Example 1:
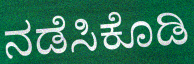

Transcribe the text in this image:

ನಡೆಸಿಕೊಡಿ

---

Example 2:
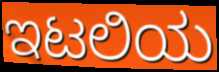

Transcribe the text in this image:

ಇಟಲಿಯ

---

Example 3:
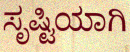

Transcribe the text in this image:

ಸೃಷ್ಟಿಯಾಗಿ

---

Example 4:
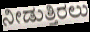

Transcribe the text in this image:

ನೀಡುತ್ತಿರಲು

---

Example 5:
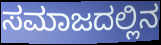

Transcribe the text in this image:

ಸಮಾಜದಲ್ಲಿನ